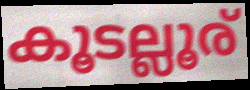
കൂടല്ലൂര്